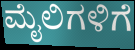
ಮೈಲಿಗಳಿಗೆ